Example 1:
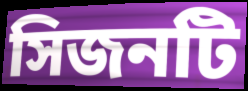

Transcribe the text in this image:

সিজনটি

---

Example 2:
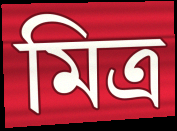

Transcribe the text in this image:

মিত্র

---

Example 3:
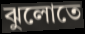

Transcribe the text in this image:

ঝুলোতে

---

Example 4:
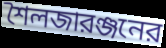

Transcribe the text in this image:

শৈলজারঞ্জনের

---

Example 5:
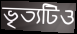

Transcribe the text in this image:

ভৃত্যটিও